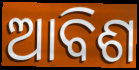
ଆବିଶ